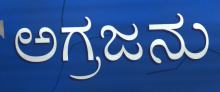
ಅಗ್ರಜನು